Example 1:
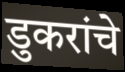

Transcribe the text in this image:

डुकरांचे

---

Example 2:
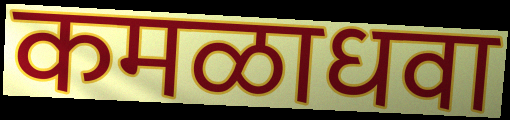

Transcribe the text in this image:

कमळाधवा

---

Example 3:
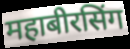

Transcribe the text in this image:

महाबीरसिंग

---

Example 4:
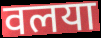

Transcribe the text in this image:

वलया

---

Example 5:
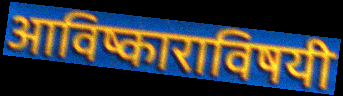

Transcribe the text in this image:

आविष्काराविषयी